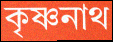
কৃষ্ণনাথ